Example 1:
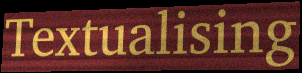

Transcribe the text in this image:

Textualising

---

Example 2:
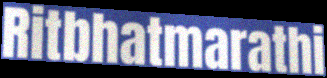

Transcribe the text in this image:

Ritbhatmarathi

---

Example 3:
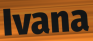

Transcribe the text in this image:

Ivana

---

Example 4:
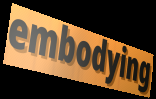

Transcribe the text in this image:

embodying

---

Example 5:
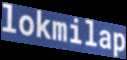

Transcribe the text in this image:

lokmilap